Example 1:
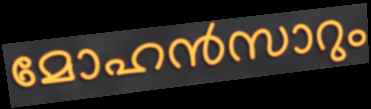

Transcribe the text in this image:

മോഹൻസാറും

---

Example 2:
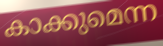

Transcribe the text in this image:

കാക്കുമെന്ന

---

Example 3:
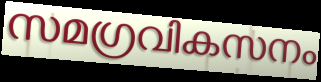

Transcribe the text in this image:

സമഗ്രവികസനം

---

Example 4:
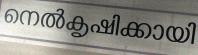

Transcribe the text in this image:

നെൽകൃഷിക്കായി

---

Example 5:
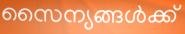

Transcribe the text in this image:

സൈന്യങ്ങൾക്ക്